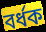
বর্ধক